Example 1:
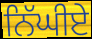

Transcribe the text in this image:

ਨਿੱਘੀਏ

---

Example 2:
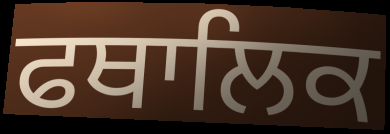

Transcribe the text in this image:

ਫਥਾਲਿਕ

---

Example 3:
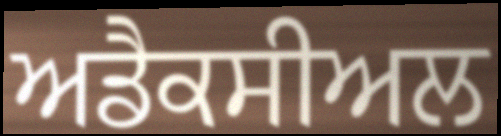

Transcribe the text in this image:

ਅਡੈਕਸੀਅਲ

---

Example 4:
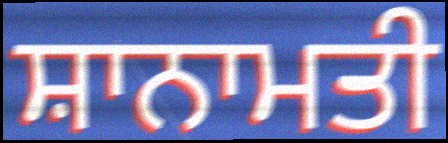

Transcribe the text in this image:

ਸ਼ਾਨਾਮਤੀ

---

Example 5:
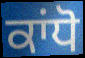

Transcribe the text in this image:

ਕਾਂਧੋ